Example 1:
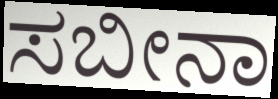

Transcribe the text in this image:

ಸಬೀನಾ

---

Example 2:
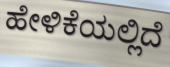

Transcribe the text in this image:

ಹೇಳಿಕೆಯಲ್ಲಿದೆ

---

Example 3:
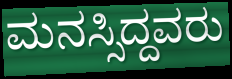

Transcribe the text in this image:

ಮನಸ್ಸಿದ್ದವರು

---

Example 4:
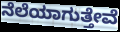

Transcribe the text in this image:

ನೆಲೆಯಾಗುತ್ತೇವೆ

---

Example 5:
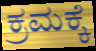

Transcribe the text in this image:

ಕ್ರಮಕ್ಕೆ